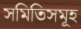
সমিতিসমূহ